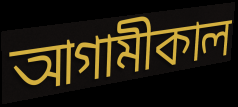
আগামীকাল